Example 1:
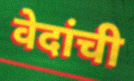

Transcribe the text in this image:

वेदांची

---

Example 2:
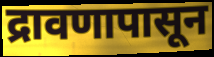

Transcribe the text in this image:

द्रावणापासून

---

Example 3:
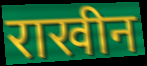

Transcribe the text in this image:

राखीन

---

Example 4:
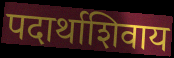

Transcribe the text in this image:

पदार्थाशिवाय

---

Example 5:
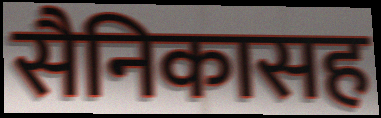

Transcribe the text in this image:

सैनिकासह